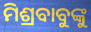
ମିଶ୍ରବାବୁଙ୍କୁ